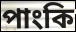
পাংকি